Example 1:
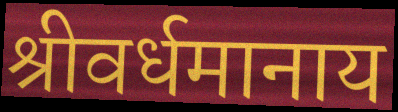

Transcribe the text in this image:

श्रीवर्धमानाय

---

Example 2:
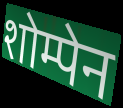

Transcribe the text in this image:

शोम्पेन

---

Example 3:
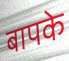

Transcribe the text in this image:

बापके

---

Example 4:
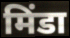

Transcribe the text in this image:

मिंडा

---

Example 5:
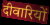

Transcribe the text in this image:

दीवारियों